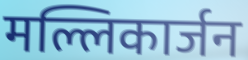
मल्लिकार्जन